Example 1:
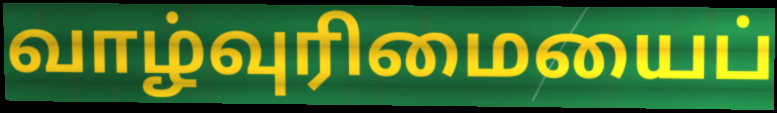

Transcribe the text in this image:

வாழ்வுரிமையைப்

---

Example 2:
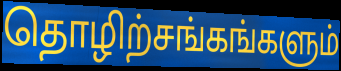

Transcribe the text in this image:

தொழிற்சங்கங்களும்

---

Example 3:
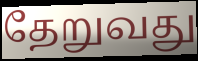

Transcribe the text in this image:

தேறுவது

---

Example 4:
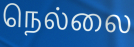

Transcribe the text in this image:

நெல்லை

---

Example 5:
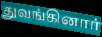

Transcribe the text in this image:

துவங்கினார்